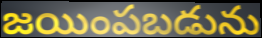
జయింపబడును